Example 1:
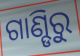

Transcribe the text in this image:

ଗାଣ୍ଡିରୁ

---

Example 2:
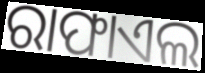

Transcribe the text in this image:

ରାଫାଏଲ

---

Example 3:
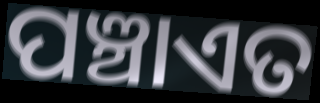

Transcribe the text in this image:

ପଞ୍ଚାଏତ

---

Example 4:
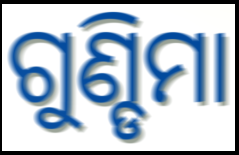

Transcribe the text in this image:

ଗୁଣ୍ଡିମା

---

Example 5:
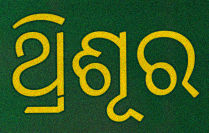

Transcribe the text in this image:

ଥ୍ରିଶୂର